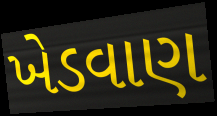
ખેડવાણ